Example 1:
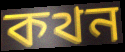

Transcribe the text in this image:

কথন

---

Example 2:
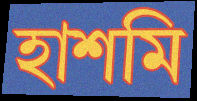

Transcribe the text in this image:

হাশমি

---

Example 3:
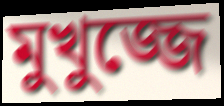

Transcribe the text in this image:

মুখুজ্জে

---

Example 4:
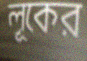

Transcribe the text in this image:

লূকের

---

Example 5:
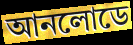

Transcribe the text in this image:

আনলোডে